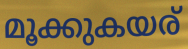
മൂക്കുകയര്